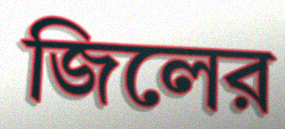
জিলের